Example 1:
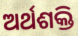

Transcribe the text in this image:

ଅର୍ଥଶକ୍ତି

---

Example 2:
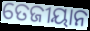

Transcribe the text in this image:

ତେଜୀୟାନ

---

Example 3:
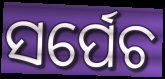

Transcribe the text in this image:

ସର୍ପେଚ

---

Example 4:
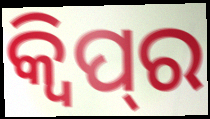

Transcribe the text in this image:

କ୍ଵିପ୍‌ର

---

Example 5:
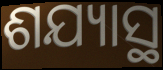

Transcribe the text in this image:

ଶଯ୍ୟାସ୍ଥ